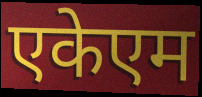
एकेएम